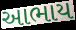
આભાય